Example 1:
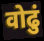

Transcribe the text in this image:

वोढुं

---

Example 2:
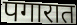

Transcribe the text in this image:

पगारात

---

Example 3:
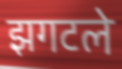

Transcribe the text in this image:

झगटले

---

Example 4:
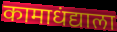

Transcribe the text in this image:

कामाधंद्याला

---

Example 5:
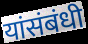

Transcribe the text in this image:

यांसंबंधी